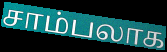
சாம்பலாக